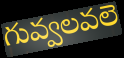
గువ్వలవలె